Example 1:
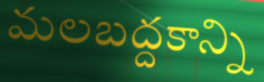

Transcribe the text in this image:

మలబద్దకాన్ని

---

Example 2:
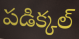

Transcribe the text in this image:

పడిక్కల్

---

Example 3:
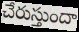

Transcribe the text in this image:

చేరుస్తుందా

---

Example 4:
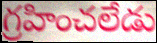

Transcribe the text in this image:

గ్రహించలేడు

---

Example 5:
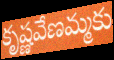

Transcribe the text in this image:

కృష్ణవేణమ్మకు